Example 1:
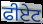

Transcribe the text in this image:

ਫੀਏਟ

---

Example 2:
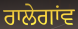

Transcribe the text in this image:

ਰਾਲੇਗਾਂਵ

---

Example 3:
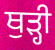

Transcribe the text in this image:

ਥੁੜ੍ਹੀ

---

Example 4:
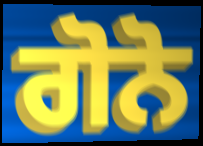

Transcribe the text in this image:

ਗੋਨੋ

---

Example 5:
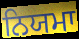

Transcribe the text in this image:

ਨਿਯਮਾ